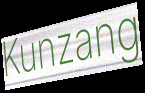
Kunzang